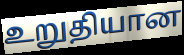
உறுதியான